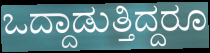
ಒದ್ದಾಡುತ್ತಿದ್ದರೂ